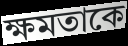
ক্ষমতাকে